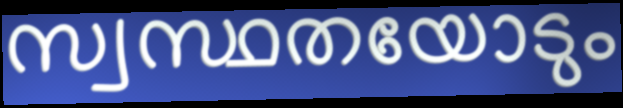
സ്വസ്ഥതയോടും